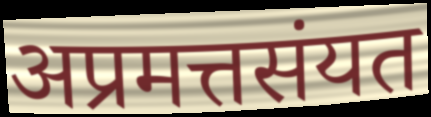
अप्रमत्तसंयत